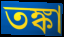
তঙ্কা